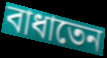
বাধাতেন